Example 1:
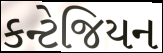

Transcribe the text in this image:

કન્ટેજિયન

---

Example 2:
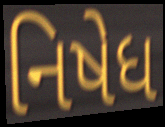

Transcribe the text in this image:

નિષેધ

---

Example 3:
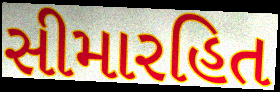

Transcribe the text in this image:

સીમારહિત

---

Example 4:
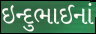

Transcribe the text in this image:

ઇન્દુભાઈનાં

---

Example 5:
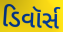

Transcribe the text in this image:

ડિવૉર્સ